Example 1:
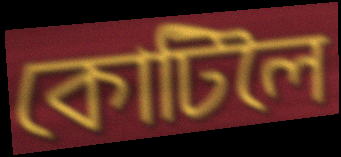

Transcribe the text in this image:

কোটিলৈ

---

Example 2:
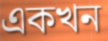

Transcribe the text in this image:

একখন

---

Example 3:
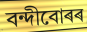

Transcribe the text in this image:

বন্দীবোৰৰ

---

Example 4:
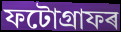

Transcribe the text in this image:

ফটোগ্ৰাফৰ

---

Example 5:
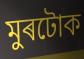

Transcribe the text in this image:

মুৰটোক